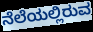
ನೆಲೆಯಲ್ಲಿರುವ